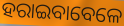
ହରାଇବାବେଳେ